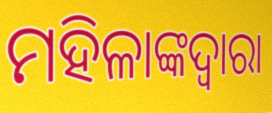
ମହିଳାଙ୍କଦ୍ୱାରା